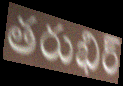
తరుభిర్